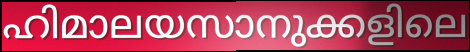
ഹിമാലയസാനുക്കളിലെ